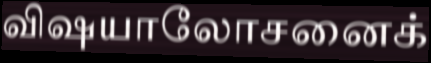
விஷயாலோசனைக்